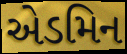
એડમિન